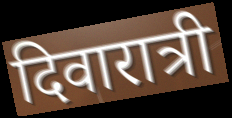
दिवारात्री